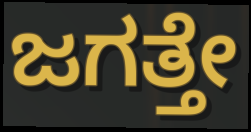
ಜಗತ್ತೇ